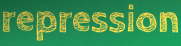
repression